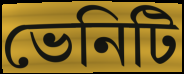
ভেনিটি